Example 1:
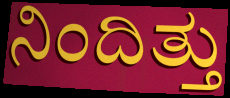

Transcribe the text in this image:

ನಿಂದಿತ್ತು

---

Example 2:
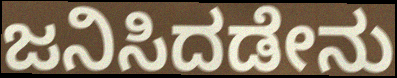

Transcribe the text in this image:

ಜನಿಸಿದಡೇನು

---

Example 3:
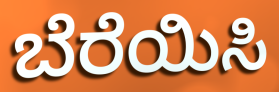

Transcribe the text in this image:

ಬೆರೆಯಿಸಿ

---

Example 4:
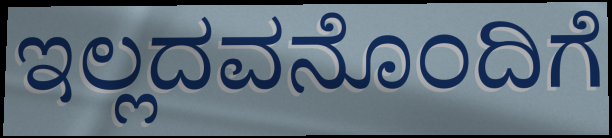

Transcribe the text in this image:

ಇಲ್ಲದವನೊಂದಿಗೆ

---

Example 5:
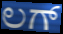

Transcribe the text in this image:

ಲಗ್